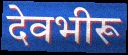
देवभीरू